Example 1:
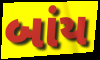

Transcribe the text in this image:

બાંય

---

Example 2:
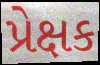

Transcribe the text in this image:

પ્રેક્ષક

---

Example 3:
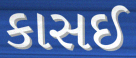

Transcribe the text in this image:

કાસઈ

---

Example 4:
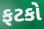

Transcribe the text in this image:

ફટકો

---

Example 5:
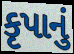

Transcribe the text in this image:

કૃપાનું